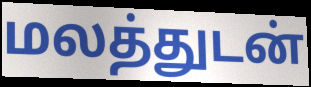
மலத்துடன்